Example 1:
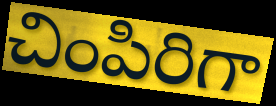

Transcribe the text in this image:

చింపిరిగా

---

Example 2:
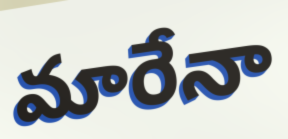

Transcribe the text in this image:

మారేనా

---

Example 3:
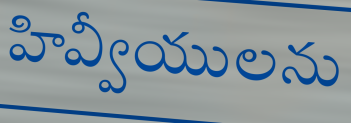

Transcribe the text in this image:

హివ్వీయులను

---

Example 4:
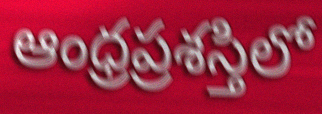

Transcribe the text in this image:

ఆంధ్రప్రశస్తిలో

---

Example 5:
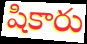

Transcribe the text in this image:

షికారు